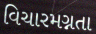
વિચારમગ્નતા